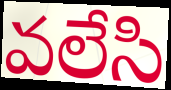
వలేసి